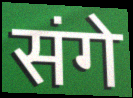
संगे